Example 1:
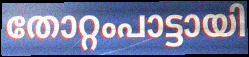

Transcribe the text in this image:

തോറ്റംപാട്ടായി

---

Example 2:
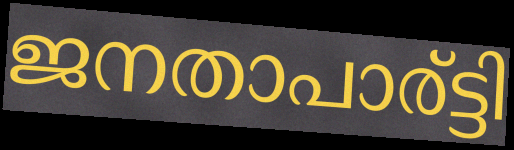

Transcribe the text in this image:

ജനതാപാര്ട്ടി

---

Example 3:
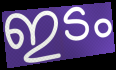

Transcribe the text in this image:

ഇടം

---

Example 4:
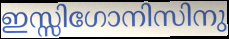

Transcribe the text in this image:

ഇസ്സിഗോനിസിനു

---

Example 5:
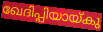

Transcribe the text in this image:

ഖേദിപ്പിയായ്കു